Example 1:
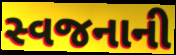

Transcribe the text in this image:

સ્વજનાની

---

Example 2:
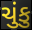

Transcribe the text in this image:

ચુંકુ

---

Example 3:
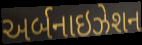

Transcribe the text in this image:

અર્બનાઇઝેશન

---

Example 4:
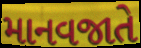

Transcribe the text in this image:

માનવજાતે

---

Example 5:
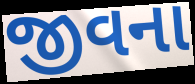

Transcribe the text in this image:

જીવના